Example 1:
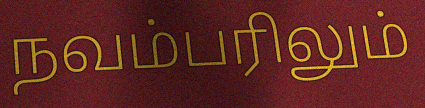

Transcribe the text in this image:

நவம்பரிலும்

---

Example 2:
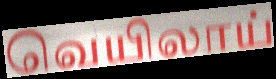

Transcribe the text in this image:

வெயிலாய்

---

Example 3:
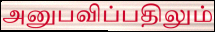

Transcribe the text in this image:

அனுபவிப்பதிலும்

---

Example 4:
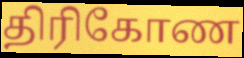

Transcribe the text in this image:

திரிகோண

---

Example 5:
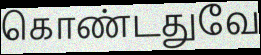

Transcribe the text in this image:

கொண்டதுவே